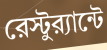
রেস্টুর‍্যান্টে